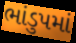
ભાંડુપમાં